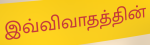
இவ்விவாதத்தின்